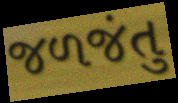
જળજંતુ